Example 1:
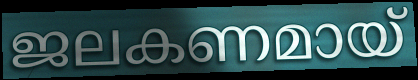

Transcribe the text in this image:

ജലകണമായ്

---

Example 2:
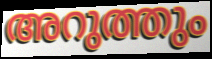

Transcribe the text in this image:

അറുത്തും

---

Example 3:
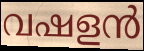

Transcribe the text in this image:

വഷളൻ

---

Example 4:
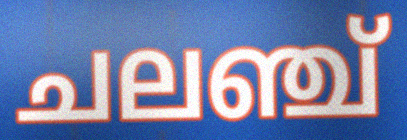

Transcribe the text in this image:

ചലഞ്ച്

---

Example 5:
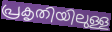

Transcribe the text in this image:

പ്രകൃതിയിലുള്ള